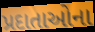
પ્રદાતાઓના